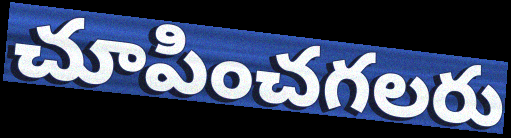
చూపించగలరు